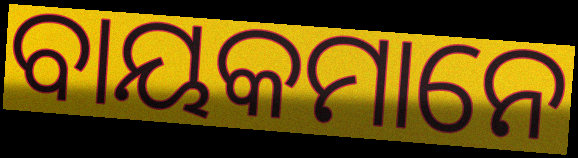
ବାୟକମାନେ